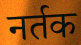
नर्तक